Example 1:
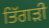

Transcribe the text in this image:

ਤਿੱਗੜੀ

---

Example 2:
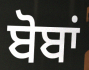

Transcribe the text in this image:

ਬੋਬਾਂ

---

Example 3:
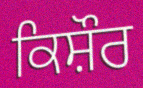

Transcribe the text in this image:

ਕਿਸ਼ੌਰ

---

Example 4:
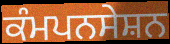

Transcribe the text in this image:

ਕੰਮਪਨਸੇਸ਼ਨ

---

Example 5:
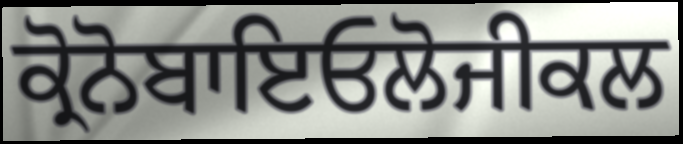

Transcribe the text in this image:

ਕ੍ਰੋਨੋਬਾਇਓਲੋਜੀਕਲ